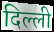
दिल्‍ली